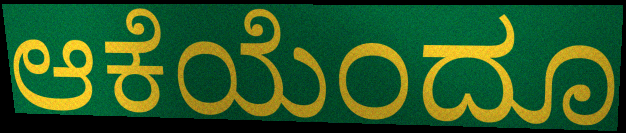
ಆಕೆಯೆಂದೂ